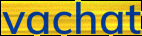
vachat